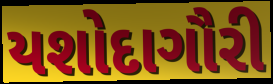
યશોદાગૌરી